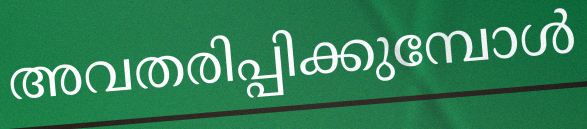
അവതരിപ്പിക്കുമ്പോൾ